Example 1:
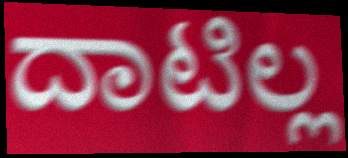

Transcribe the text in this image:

ದಾಟಿಲ್ಲ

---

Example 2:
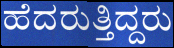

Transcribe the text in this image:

ಹೆದರುತ್ತಿದ್ದರು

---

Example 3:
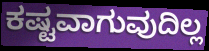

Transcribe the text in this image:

ಕಷ್ಟವಾಗುವುದಿಲ್ಲ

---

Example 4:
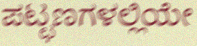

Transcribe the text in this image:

ಪಟ್ಟಣಗಳಲ್ಲಿಯೇ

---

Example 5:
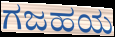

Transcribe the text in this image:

ಗಜಹಯ